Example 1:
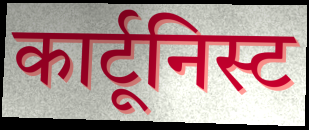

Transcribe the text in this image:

कार्टूनिस्ट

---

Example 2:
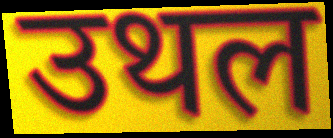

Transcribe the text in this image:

उथल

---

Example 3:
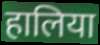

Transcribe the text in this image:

हालिया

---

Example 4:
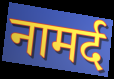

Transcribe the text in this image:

नामर्द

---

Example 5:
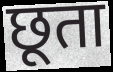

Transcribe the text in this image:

छूता